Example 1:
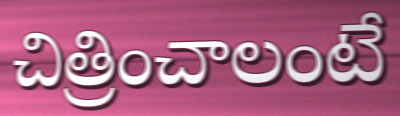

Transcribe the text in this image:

చిత్రించాలంటే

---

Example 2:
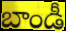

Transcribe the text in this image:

బాండీ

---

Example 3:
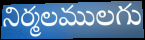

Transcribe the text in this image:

నిర్మలములగు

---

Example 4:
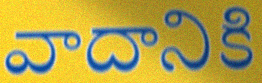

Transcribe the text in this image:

వాదానికి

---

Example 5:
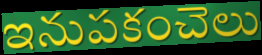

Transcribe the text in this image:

ఇనుపకంచెలు